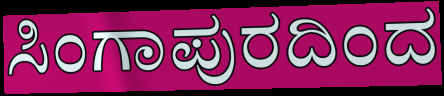
ಸಿಂಗಾಪುರದಿಂದ